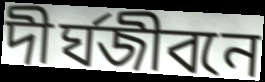
দীর্ঘজীবনে